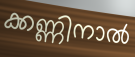
ക്കണ്ണിനാൽ